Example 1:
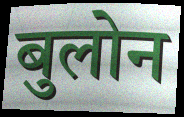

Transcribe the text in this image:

बुलोन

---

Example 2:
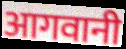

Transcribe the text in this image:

आगवानी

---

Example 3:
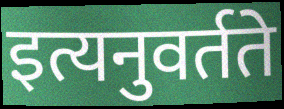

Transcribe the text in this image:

इत्यनुवर्तते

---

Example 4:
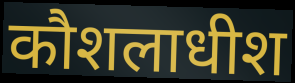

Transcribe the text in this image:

कौशलाधीश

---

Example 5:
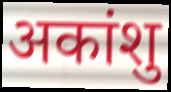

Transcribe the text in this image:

अकांशु